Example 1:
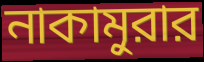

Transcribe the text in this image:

নাকামুরার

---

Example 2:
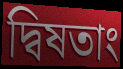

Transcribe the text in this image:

দ্বিষতাং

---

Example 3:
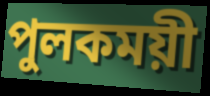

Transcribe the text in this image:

পুলকময়ী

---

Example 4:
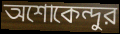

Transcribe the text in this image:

অশোকেন্দুর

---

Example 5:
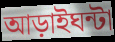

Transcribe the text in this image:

আড়াইঘন্টা